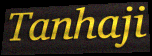
Tanhaji